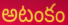
అటంకం